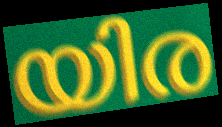
യിര